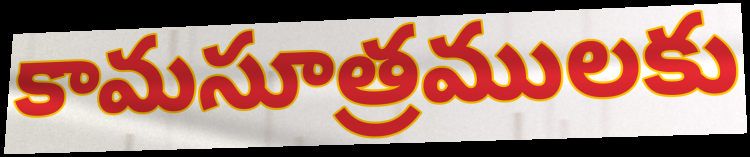
కామసూత్రములకు